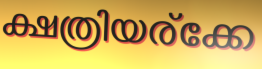
ക്ഷത്രിയര്ക്കേ